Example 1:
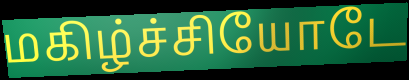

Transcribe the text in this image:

மகிழ்ச்சியோடே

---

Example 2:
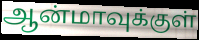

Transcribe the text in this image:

ஆன்மாவுக்குள்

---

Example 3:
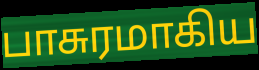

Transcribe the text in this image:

பாசுரமாகிய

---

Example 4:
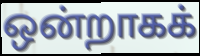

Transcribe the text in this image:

ஒன்றாகக்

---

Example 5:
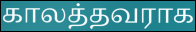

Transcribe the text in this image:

காலத்தவராக